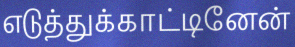
எடுத்துக்காட்டினேன்